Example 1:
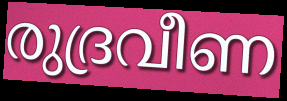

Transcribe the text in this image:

രുദ്രവീണ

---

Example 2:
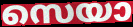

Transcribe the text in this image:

സെയാ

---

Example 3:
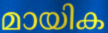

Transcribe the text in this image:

മായിക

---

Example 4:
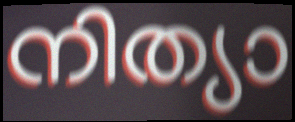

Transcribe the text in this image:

നിത്യാ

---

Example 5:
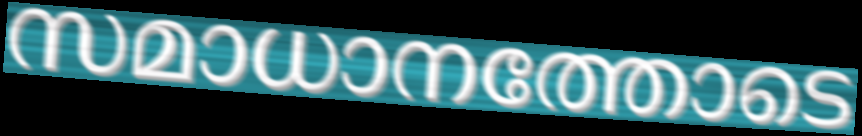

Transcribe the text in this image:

സമാധാനത്തോടെ